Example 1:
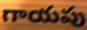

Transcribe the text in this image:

గాయపు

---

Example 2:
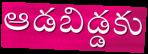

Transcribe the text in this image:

ఆడబిడ్డకు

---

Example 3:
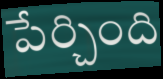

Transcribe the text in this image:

పేర్చింది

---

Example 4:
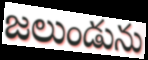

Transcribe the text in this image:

జలుండును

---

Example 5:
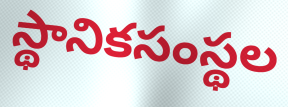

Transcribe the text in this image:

స్థానికసంస్థల